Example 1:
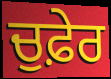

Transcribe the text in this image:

ਚੁਫ਼ੇਰ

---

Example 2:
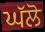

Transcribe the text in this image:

ਘੱਲੋ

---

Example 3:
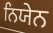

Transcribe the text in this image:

ਨਿਯੇਨ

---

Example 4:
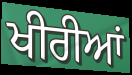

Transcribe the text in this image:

ਖੀਰੀਆਂ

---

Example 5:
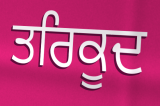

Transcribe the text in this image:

ਤਰਿਕੂਦ